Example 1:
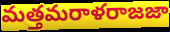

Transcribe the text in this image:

మత్తమరాళరాజజా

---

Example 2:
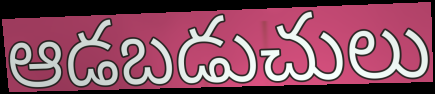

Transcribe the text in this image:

ఆడబడుచులు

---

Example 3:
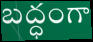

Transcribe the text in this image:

బద్ధంగా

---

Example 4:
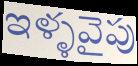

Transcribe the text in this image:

ఇళ్ళవైపు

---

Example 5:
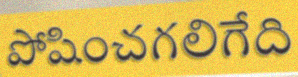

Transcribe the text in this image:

పోషించగలిగేది